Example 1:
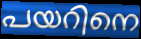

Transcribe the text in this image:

പയറിനെ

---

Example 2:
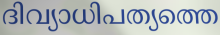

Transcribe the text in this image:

ദിവ്യാധിപത്യത്തെ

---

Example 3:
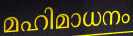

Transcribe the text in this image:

മഹിമാധനം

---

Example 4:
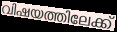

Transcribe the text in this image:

വിഷയത്തിലേക്ക്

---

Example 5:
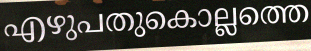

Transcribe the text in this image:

എഴുപതുകൊല്ലത്തെ